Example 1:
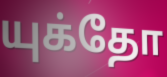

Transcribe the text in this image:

யுக்தோ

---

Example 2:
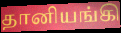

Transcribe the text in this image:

தானியங்கி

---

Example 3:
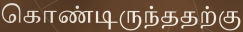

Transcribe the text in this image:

கொண்டிருந்ததற்கு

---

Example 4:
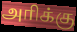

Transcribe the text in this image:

அரிக்கு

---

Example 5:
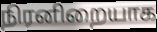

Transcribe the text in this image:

நிரனிறையாக